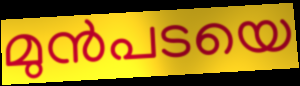
മുൻപടയെ